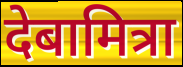
देबामित्रा